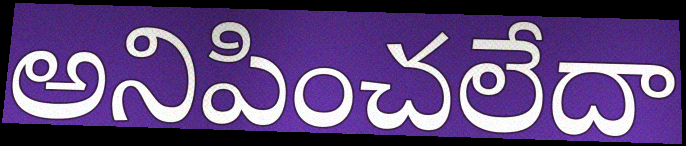
అనిపించలేదా